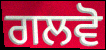
ਗਲਵੋ